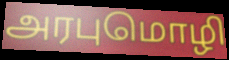
அரபுமொழி